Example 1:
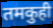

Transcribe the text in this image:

तमकुही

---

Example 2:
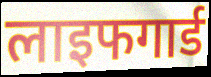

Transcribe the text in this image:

लाइफगार्ड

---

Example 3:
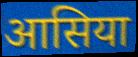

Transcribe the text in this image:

आसिया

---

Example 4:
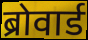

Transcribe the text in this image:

ब्रोवार्ड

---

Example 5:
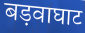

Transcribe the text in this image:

बड़वाघाट